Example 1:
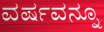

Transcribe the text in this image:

ವರ್ಷವನ್ನೂ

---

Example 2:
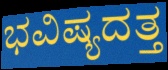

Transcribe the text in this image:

ಭವಿಷ್ಯದತ್ತ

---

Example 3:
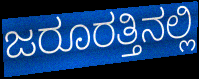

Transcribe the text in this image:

ಜರೂರತ್ತಿನಲ್ಲಿ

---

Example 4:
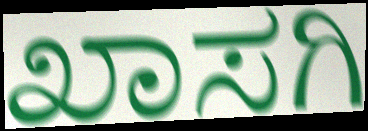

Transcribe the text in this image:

ಖಾಸಗಿ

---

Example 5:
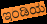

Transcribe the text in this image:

ಇಂಡಿಯ